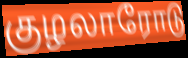
குழலாரோடு